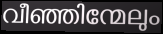
വീഞ്ഞിന്മേലും